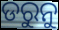
ଡରୁନୁ